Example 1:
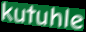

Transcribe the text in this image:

kutuhle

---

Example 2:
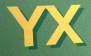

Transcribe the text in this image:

YX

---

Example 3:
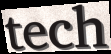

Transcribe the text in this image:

tech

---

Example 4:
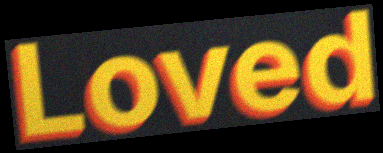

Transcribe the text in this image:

Loved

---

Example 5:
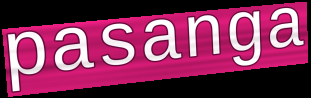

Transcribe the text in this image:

pasanga